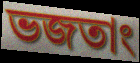
ভজতাং